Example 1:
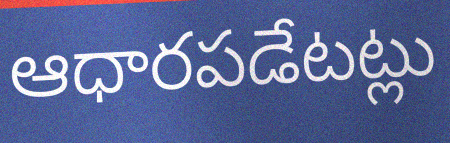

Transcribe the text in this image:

ఆధారపడేటట్లు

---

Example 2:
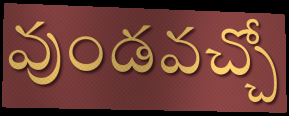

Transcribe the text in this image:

వుండవచ్చో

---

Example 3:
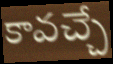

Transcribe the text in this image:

కావచ్చే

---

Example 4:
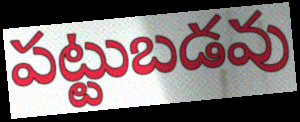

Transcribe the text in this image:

పట్టుబడవు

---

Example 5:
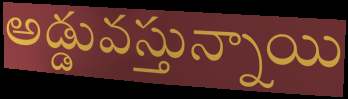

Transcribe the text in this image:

అడ్డువస్తున్నాయి